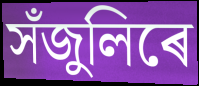
সঁজুলিৰে